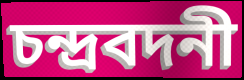
চন্দ্রবদনী